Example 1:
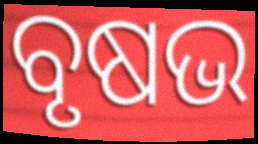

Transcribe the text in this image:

ବୃଷଭ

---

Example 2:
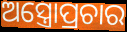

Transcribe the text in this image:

ଅସ୍ତ୍ରୋପ୍ରଚାର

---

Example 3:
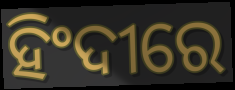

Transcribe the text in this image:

ହିଂଦୀରେ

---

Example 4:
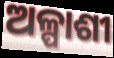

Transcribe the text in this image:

ଅଳ୍ପାଶୀ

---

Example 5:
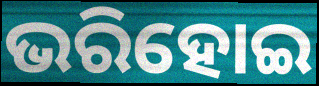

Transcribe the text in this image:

ଭରିହୋଇ